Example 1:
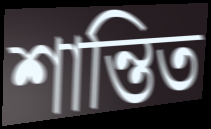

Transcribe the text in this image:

শান্তিত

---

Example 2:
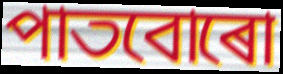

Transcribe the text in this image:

পাতবোৰো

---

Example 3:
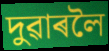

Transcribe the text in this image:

দুৱাৰলৈ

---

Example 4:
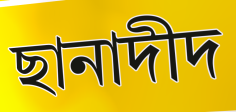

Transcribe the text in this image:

ছানাদীদ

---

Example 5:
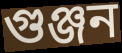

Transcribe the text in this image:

গুঞ্জন